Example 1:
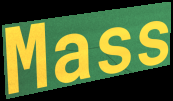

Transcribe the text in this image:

Mass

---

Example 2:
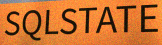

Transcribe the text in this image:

SQLSTATE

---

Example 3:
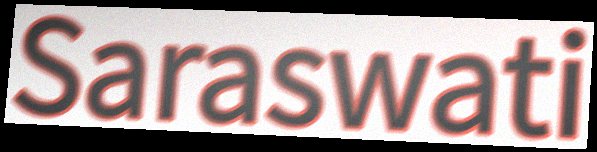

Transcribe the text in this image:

Saraswati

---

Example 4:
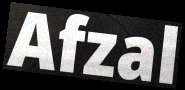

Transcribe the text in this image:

Afzal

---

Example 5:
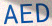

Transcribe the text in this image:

AED